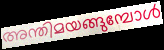
അന്തിമയങ്ങുമ്പോൾ